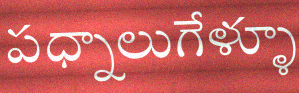
పధ్నాలుగేళ్ళూ